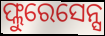
ଫ୍ଲୁରେସେନ୍ସ